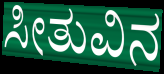
ಸೀತುವಿನ